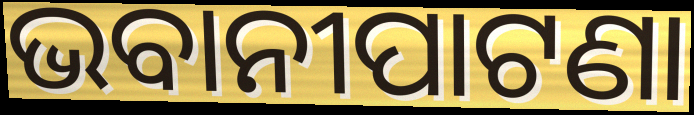
ଭବାନୀପାଟଣା